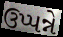
ઉપ્પન્ને